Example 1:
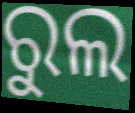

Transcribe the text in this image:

ରୁଲ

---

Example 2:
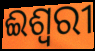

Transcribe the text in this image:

ଈଶ୍ଵରୀ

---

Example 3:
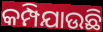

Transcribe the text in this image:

କମ୍ପିଯାଉଛି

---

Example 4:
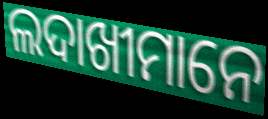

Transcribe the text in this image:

ଲଦାଖୀମାନେ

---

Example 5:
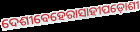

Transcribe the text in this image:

ଦେଶୀବେହେରାସାହୀପଡ଼ୋଶୀ